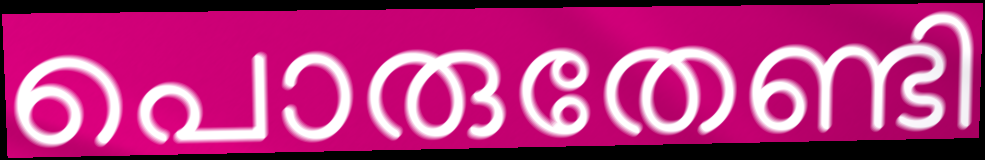
പൊരുതേണ്ടി